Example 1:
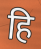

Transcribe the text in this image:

हि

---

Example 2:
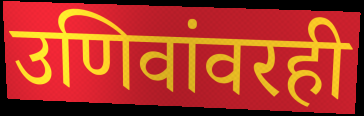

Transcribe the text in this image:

उणिवांवरही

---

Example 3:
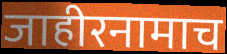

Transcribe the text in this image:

जाहीरनामाच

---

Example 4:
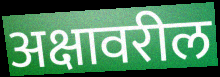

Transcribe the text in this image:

अक्षावरील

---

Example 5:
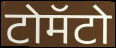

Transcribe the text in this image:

टोमॅटो